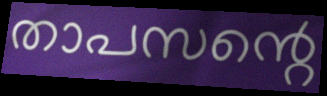
താപസന്റെ